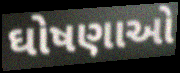
ઘોષણાઓ